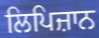
ਲਿਪਿਜ਼ਾਨ